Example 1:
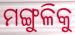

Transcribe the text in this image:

ମଙ୍ଗୁଳିକୁ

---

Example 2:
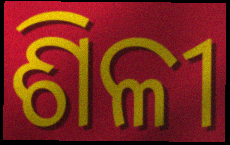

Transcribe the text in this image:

ଶିଳୀ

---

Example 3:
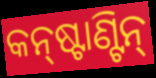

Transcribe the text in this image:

କନ୍‌ଷ୍ଟାଣ୍ଟିନ୍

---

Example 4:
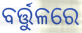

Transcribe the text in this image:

ବର୍ତ୍ତୁଳରେ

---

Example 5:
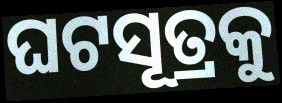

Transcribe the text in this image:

ଘଟସୂତ୍ରକୁ